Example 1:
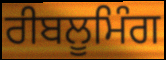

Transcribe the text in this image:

ਰੀਬਲੂਮਿੰਗ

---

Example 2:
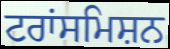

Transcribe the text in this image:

ਟਰਾਂਸਮਿਸ਼ਨ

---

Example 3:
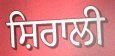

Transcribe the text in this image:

ਸ਼ਿਰਾਲੀ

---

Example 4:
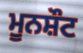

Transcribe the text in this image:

ਮੂਨਸ਼ੌਟ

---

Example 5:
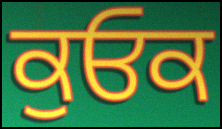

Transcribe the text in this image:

ਕੁਓਕ